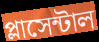
প্লাসেন্টাল